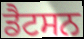
ਡੈਟਸਨ